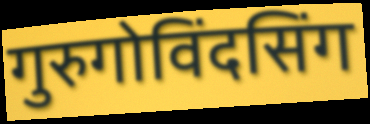
गुरुगोविंदसिंग